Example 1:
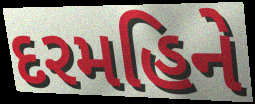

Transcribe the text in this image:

દરમહિને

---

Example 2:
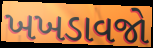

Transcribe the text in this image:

ખખડાવજો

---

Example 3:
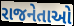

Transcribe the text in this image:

રાજનેતાઓ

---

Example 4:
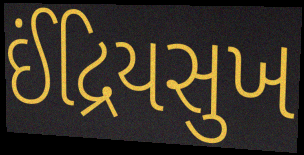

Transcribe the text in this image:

ઈંદ્રિયસુખ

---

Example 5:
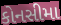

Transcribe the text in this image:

કોનસીમા